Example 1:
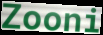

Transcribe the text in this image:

Zooni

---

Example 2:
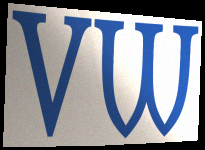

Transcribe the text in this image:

vw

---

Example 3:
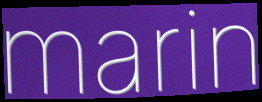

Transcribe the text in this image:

marin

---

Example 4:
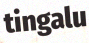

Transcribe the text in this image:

tingalu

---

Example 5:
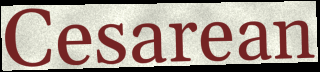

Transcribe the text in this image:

Cesarean